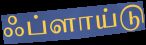
ஃப்ளாய்டு